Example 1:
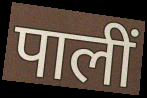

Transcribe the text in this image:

पालीं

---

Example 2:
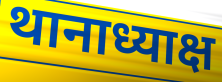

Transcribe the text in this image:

थानाध्याक्ष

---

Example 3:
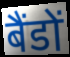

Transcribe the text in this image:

बैंडों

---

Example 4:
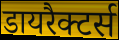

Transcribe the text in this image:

डायरैक्टर्स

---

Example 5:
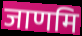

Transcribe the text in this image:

जाणमि